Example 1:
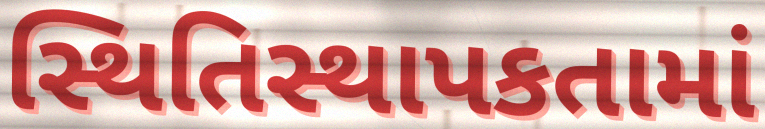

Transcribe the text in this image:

સ્થિતિસ્થાપકતામાં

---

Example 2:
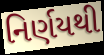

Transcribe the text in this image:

નિર્ણયથી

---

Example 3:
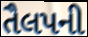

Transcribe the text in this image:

તૈલપની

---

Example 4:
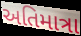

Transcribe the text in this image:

અતિમાત્રા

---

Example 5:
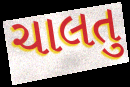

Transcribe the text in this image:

ચાલતુ